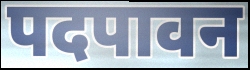
पदपावन